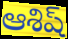
ఆశిష్